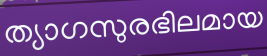
ത്യാഗസുരഭിലമായ